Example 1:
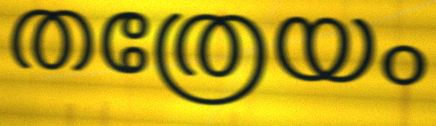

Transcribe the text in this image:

തത്രേയം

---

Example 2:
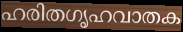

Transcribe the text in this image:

ഹരിതഗൃഹവാതക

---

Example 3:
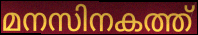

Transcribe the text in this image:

മനസിനകത്ത്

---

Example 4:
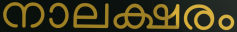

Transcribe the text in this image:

നാലക്ഷരം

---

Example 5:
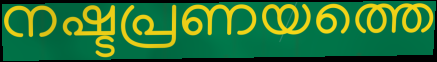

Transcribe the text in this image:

നഷ്ടപ്രണയത്തെ